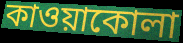
কাওয়াকোলা